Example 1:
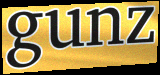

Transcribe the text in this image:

gunz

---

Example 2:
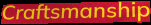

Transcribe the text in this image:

Craftsmanship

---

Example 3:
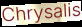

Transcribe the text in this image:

Chrysalis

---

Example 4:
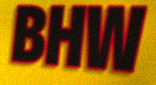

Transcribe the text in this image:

BHW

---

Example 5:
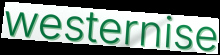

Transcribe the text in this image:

westernise